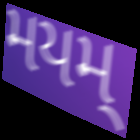
મયમ્